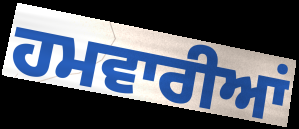
ਹਮਵਾਰੀਆਂ